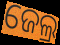
ଜେଲ୍ର